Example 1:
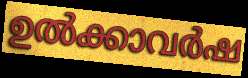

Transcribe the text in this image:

ഉൽക്കാവർഷ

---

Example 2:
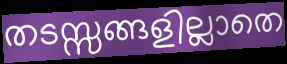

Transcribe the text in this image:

തടസ്സങ്ങളില്ലാതെ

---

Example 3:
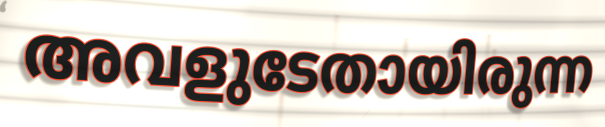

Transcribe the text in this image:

അവളുടേതായിരുന്ന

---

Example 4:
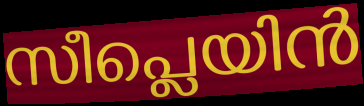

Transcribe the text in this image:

സീപ്ലെയിൻ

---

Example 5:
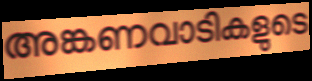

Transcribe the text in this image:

അങ്കണവാടികളുടെ